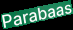
Parabaas